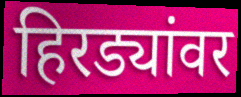
हिरड्यांवर